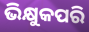
ଭିକ୍ଷୁକପରି